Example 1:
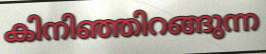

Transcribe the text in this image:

കിനിഞ്ഞിറങ്ങുന്ന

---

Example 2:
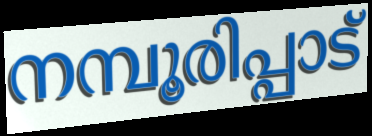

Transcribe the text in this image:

നമ്പൂരിപ്പാട്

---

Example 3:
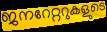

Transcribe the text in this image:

ജനറേറ്ററുകളുടെ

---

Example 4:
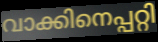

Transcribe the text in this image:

വാക്കിനെപ്പറ്റി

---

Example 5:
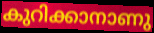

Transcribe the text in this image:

കുറിക്കാനാണു